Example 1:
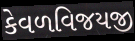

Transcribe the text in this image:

કેવળવિજયજી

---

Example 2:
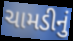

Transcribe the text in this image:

ચામડીનું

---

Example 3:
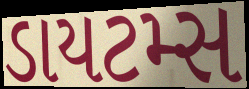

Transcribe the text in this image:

ડાયટમ્સ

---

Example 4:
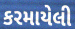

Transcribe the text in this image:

કરમાયેલી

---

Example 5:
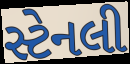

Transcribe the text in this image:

સ્ટેનલી